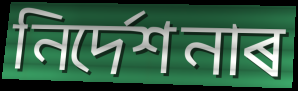
নিৰ্দেশনাৰ